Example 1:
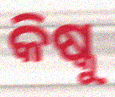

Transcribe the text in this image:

କିଷ୍କୁ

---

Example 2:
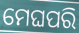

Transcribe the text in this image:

ମେଘପରି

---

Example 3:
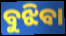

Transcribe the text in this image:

ବୁଝିବା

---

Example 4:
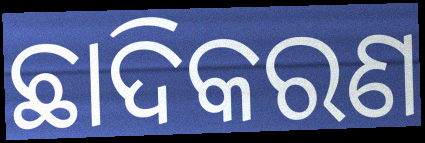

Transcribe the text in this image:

ଛାଦିକରଣ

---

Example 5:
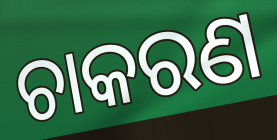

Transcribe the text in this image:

ଚାକରଣ